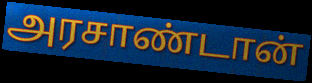
அரசாண்டான்